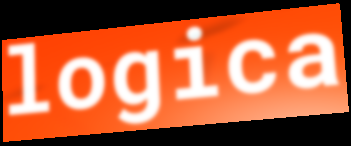
logica